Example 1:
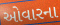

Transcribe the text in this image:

ઓવારના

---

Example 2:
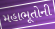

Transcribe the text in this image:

મહાભૂતોની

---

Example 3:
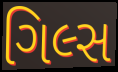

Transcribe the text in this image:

ગિલ્સ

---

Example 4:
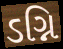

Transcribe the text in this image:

ઽગ્નિ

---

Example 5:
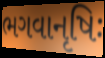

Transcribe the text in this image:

ભગવાનૃષિઃ